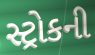
સ્ટ્રોકની